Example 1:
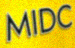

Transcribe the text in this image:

MIDC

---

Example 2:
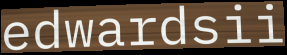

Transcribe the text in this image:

edwardsii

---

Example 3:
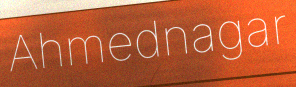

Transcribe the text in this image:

Ahmednagar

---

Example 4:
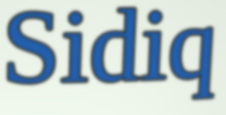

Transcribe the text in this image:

Sidiq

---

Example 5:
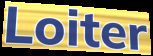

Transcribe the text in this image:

Loiter